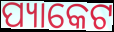
ପ୍ଯାକେଟ